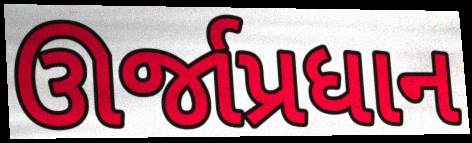
ઊર્જાપ્રધાન